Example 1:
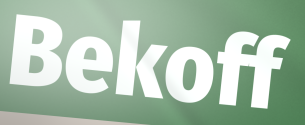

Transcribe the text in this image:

Bekoff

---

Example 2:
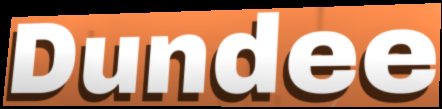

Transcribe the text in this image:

Dundee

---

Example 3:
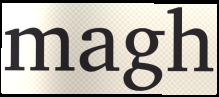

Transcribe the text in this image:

magh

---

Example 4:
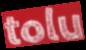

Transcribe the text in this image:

tolu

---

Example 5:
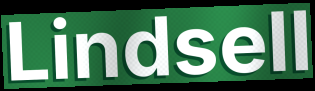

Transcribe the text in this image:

Lindsell